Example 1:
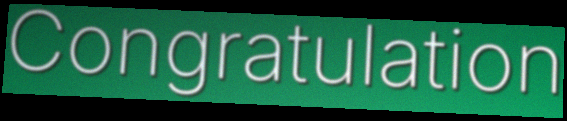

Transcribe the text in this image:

Congratulation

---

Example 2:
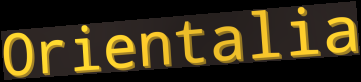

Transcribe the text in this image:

Orientalia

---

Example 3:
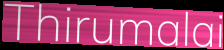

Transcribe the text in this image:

Thirumalai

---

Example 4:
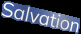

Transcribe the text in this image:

Salvation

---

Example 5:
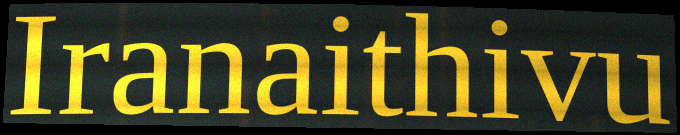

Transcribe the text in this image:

Iranaithivu